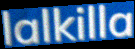
lalkilla